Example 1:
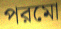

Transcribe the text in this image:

পরমো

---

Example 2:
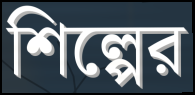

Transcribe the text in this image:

শিল্পের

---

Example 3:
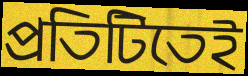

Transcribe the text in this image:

প্রতিটিতেই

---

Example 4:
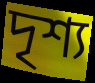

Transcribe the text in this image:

দৃশ্য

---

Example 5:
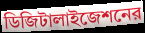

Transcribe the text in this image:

ডিজিটালাইজেশনের